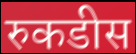
रुकडीस